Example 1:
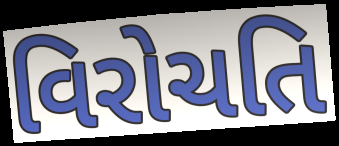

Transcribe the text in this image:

વિરોચતિ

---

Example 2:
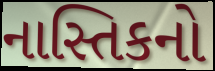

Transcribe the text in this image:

નાસ્તિકનો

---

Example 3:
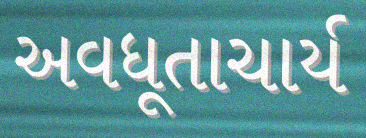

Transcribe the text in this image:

અવધૂતાચાર્ય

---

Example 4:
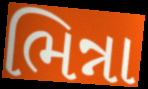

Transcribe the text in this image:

ભિન્ના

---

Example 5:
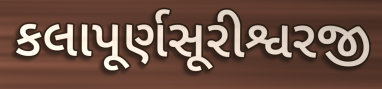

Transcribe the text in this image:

કલાપૂર્ણસૂરીશ્વરજી